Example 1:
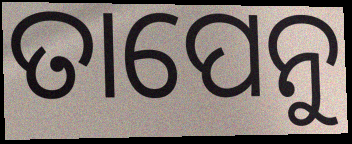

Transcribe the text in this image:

ତାପେନୁ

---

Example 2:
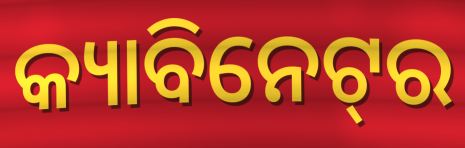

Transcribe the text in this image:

କ୍ୟାବିନେଟ୍‌ର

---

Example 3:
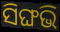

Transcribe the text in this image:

ସିଙ୍ଘଭି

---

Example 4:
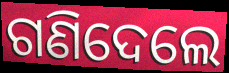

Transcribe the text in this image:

ଗଣିଦେଲେ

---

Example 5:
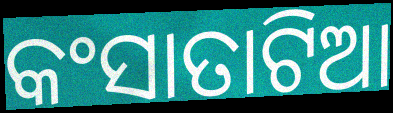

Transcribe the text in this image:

କଂସାତାଟିଆ